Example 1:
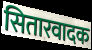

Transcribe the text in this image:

सितारवादक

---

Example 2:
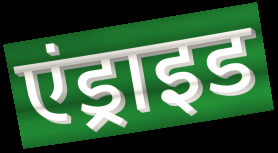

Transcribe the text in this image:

एंड्राइड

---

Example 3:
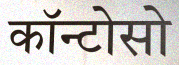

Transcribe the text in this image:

कॉन्टोसो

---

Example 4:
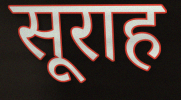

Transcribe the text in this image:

सूराह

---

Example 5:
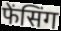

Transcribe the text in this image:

फेंसिंग